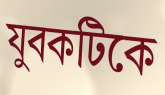
যুবকটিকে